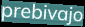
prebivajo